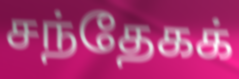
சந்தேகக்